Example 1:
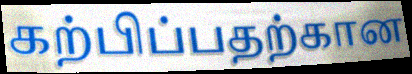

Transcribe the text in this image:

கற்பிப்பதற்கான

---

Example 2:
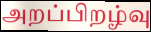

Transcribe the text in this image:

அறப்பிறழ்வு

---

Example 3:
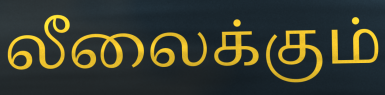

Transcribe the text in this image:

லீலைக்கும்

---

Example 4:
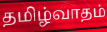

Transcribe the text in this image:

தமிழ்வாதம்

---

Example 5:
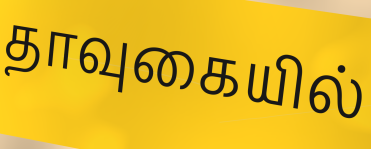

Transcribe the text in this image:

தாவுகையில்